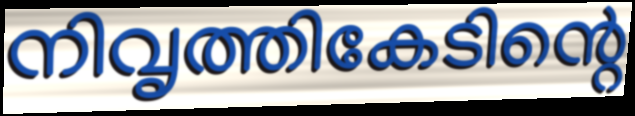
നിവൃത്തികേടിന്റെ